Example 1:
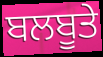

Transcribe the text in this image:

ਬਲਬੂਤੇ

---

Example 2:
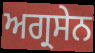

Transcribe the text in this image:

ਅਗ੍ਰਸੇਨ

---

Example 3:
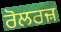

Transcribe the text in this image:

ਰੋਲਰਜ਼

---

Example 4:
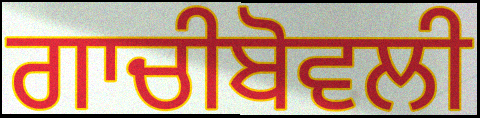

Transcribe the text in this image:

ਗਾਚੀਬੋਵਲੀ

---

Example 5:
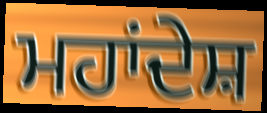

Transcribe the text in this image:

ਮਹਾਂਦੇਸ਼